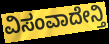
ವಿಸಂವಾದೇನ್ತಿ